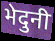
भेदुनी